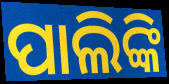
ପାଲିଙ୍କି